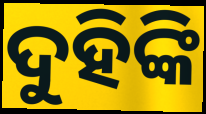
ଦୁହିଙ୍କି